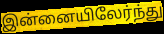
இன்னையிலேர்ந்து